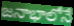
జనాభాలోనే